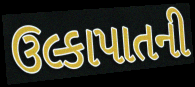
ઉલ્કાપાતની